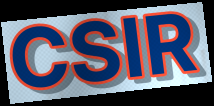
CSIR